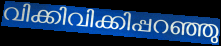
വിക്കിവിക്കിപ്പറഞ്ഞു